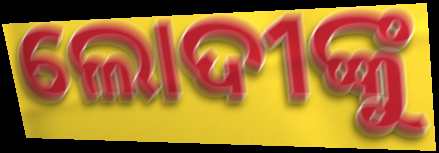
ଲୋଦୀଙ୍କୁ